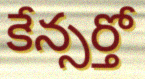
కేన్సర్తో